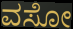
ವಸೋ